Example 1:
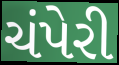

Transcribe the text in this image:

ચંપેરી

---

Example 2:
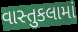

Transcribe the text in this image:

વાસ્તુકલામાં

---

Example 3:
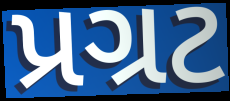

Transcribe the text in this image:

પ્રગ્રટ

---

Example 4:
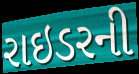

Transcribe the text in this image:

રાઇડરની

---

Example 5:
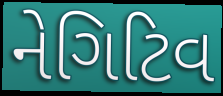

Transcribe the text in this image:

નેગિટિવ